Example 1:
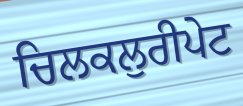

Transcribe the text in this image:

ਚਿਲਕਲੁਰੀਪੇਟ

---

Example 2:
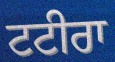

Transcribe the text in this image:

ਟਟੀਰਾ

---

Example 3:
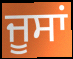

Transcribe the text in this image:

ਜੂਸਾਂ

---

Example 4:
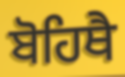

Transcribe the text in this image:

ਬੋਹਿਥੈ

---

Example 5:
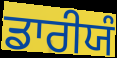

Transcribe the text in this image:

ਡਾਰੀਯੰ